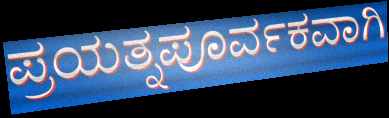
ಪ್ರಯತ್ನಪೂರ್ವಕವಾಗಿ